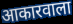
आकारवाला